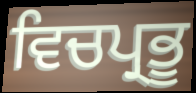
ਵਿਚਪ੍ਰਭੂ